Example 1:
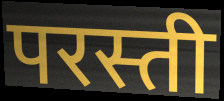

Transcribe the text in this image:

परस्ती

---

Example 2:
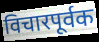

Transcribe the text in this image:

विचारपूर्वक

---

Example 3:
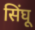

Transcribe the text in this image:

सिंघू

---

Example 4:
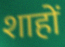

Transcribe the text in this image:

शाहों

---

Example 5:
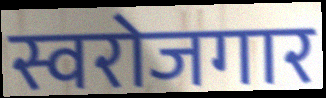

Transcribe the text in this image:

स्‍वरोजगार